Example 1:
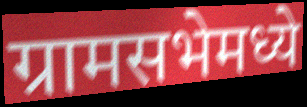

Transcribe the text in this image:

ग्रामसभेमध्ये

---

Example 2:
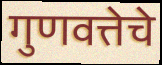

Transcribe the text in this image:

गुणवत्तेचे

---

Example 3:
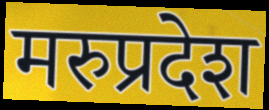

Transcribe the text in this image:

मरुप्रदेश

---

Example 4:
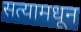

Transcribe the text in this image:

सत्यामधून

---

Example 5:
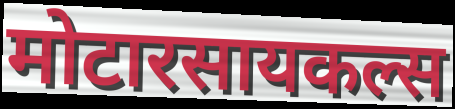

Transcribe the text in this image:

मोटारसायकल्स